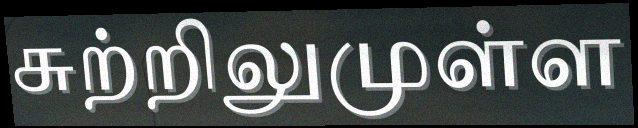
சுற்றிலுமுள்ள